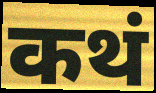
कथं